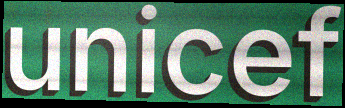
unicef